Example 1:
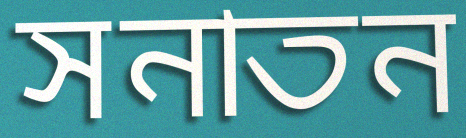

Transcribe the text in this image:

সনাতন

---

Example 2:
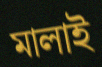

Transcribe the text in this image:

মালাই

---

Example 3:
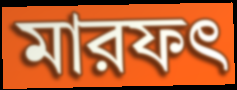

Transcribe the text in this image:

মারফৎ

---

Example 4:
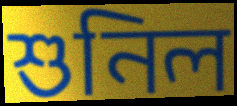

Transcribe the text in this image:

শুনিল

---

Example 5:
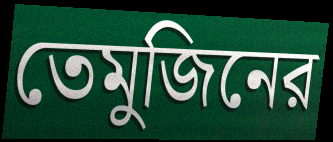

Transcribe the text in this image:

তেমুজিনের